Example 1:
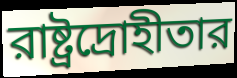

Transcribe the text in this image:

রাষ্ট্রদ্রোহীতার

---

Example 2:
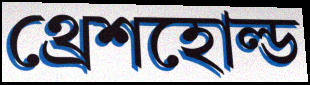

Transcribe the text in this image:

থ্রেশহোল্ড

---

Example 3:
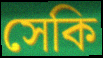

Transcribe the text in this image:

সেকি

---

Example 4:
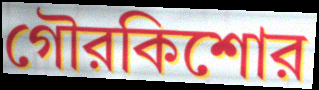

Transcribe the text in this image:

গৌরকিশোর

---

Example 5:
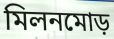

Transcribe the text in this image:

মিলনমোড়